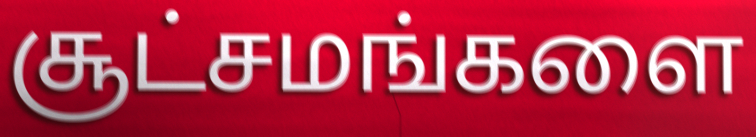
சூட்சமங்களை